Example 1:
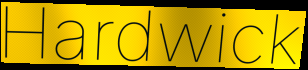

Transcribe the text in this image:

Hardwick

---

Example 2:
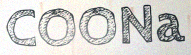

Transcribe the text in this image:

COONa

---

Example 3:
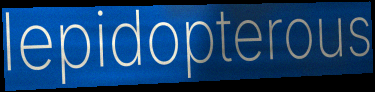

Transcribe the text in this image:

lepidopterous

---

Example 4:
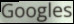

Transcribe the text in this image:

Googles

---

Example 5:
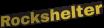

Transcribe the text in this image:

Rockshelter